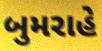
બુમરાહે